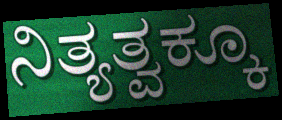
ನಿತ್ಯತ್ವಕ್ಕೂ